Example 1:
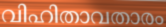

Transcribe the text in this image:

വിഹിതാവതാരം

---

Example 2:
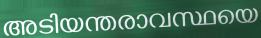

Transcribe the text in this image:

അടിയന്തരാവസ്ഥയെ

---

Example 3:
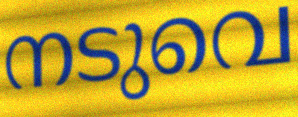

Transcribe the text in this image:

നടുവെ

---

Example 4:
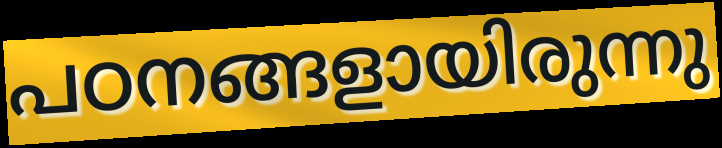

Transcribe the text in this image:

പഠനങ്ങളായിരുന്നു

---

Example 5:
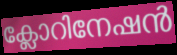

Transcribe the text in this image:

ക്ലോറിനേഷൻ